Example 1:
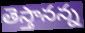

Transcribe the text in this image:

తెస్తానన్న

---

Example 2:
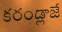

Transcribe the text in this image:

కరండ్లాజే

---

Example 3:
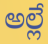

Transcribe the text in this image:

అల్లే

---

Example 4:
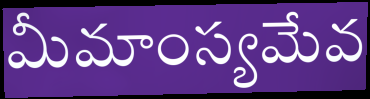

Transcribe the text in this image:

మీమాంస్యమేవ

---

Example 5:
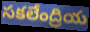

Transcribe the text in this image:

సకలేంద్రియ